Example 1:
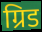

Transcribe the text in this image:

ग्रिड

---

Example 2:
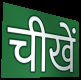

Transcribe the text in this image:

चीखें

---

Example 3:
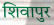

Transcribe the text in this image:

शिवापुर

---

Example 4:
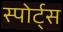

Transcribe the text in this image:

स्पोर्ट्स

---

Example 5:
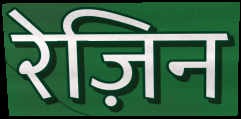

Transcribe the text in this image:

रेज़िन